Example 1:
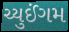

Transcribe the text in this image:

ચ્યુઈંગમ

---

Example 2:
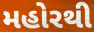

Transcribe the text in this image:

મહોરથી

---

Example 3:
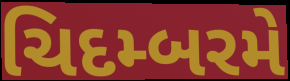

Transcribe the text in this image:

ચિદમ્બરમે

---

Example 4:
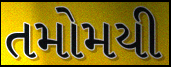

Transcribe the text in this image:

તમોમયી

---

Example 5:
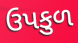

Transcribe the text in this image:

ઉપકુળ